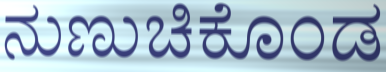
ನುಣುಚಿಕೊಂಡ